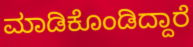
ಮಾಡಿಕೊಂಡಿದ್ದಾರೆ